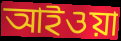
আইওয়া